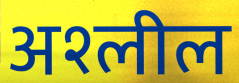
अश्लील